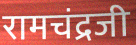
रामचंद्रजी